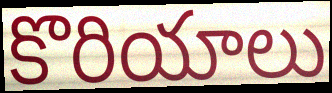
కొరియాలు